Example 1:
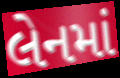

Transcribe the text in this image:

લેનમાં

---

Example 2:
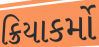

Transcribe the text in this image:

ક્રિયાકર્મો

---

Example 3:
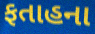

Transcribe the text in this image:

ફતાહના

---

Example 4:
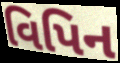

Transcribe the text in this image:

વિપિન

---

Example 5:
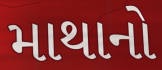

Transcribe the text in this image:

માથાનો